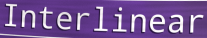
Interlinear